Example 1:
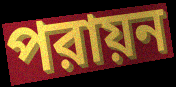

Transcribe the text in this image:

পরায়ন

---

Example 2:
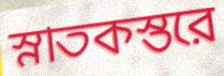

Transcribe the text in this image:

স্নাতকস্তরে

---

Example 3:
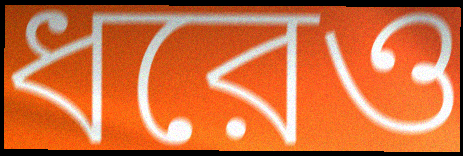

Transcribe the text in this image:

ধরেও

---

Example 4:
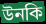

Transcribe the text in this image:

উনকি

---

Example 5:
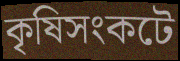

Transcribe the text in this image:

কৃষিসংকটে